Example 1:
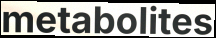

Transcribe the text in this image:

metabolites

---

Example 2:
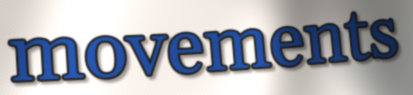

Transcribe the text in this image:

movements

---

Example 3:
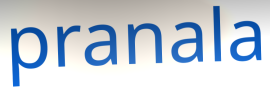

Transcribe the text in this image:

pranala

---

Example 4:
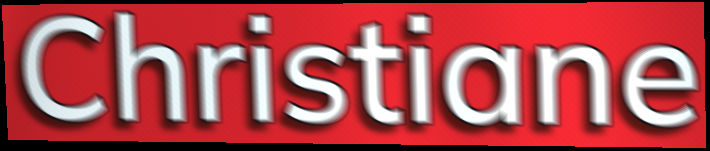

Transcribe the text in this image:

Christiane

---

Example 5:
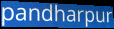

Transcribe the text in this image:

pandharpur